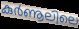
കുർണൂലിലെ